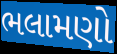
ભલામણો